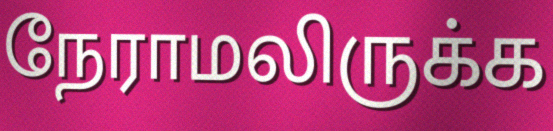
நேராமலிருக்க